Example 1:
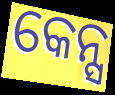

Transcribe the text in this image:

କେନ୍ସ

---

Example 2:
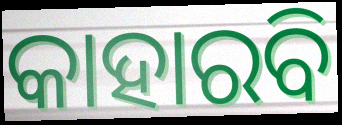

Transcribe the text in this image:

କାହାରବି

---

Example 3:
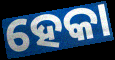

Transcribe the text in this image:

ହେକା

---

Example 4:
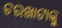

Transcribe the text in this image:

ଚରଖାଟାକୁ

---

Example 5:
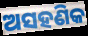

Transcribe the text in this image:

ଅସହଣିକ